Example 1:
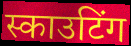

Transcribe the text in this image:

स्काउटिंग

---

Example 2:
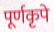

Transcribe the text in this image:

पूर्णकृपे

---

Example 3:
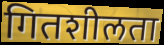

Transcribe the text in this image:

गितशीलता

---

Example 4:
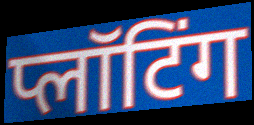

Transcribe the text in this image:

प्लॉटिंग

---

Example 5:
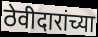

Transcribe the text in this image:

ठेवीदारांच्या